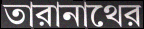
তারানাথের